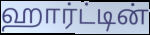
ஹார்ட்டின்